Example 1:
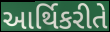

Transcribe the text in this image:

આર્થિકરીતે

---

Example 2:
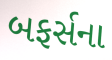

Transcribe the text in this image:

બફર્સના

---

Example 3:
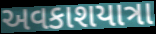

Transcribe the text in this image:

અવકાશયાત્રા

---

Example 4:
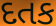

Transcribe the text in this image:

દતક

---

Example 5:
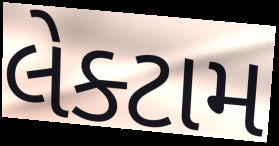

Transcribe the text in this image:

લેક્ટામ